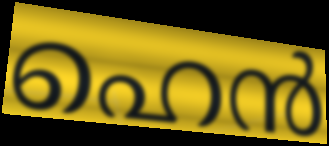
ഹെൻ